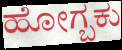
ಹೋಗ್ಬಕು